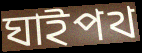
ঘাইপথ